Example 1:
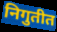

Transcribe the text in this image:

निगुतीत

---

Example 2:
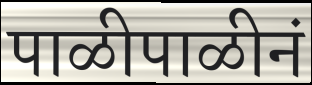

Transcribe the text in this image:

पाळीपाळीनं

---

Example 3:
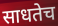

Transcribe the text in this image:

साधतेच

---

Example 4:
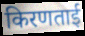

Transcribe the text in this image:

किरणताई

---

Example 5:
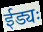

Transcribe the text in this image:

ईड्यः